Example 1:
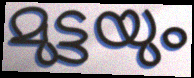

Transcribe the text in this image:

മുട്ടയും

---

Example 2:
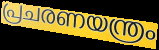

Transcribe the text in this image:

പ്രചരണയന്ത്രം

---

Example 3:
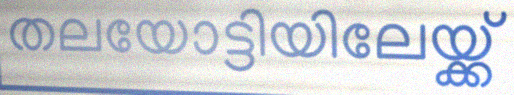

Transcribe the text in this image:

തലയോട്ടിയിലേയ്ക്ക്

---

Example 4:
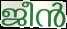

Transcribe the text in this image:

ജീൻ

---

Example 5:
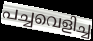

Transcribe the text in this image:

പച്ചവെളിച്ച